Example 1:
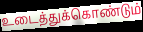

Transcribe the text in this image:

உடைத்துக்கொண்டும்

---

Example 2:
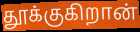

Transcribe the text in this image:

தூக்குகிறான்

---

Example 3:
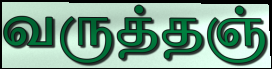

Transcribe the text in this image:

வருத்தஞ்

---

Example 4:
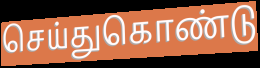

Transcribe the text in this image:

செய்துகொண்டு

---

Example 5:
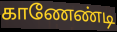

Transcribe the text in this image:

காணேண்டி